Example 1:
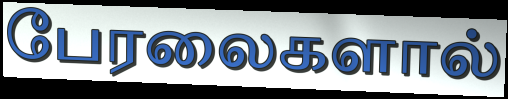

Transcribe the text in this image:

பேரலைகளால்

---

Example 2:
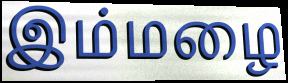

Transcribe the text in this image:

இம்மழை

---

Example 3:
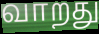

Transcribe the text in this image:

வாறது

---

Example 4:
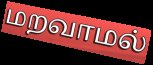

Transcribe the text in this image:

மறவாமல்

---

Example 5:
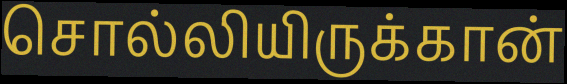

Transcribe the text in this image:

சொல்லியிருக்கான்